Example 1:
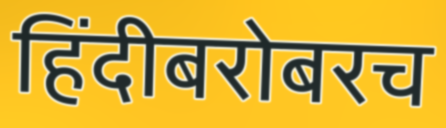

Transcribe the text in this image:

हिंदीबरोबरच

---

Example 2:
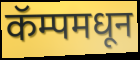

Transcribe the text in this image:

कॅम्पमधून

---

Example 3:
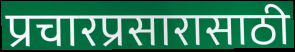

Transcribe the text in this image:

प्रचारप्रसारासाठी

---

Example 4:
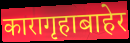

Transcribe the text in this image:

कारागृहाबाहेर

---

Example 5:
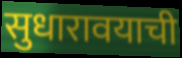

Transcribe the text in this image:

सुधारावयाची